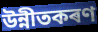
উন্নীতকৰণ